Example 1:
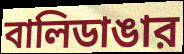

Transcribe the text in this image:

বালিডাঙার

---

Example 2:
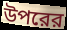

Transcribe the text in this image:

উপরের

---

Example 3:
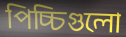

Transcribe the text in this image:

পিচ্চিগুলো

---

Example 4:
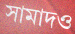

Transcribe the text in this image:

সামাদও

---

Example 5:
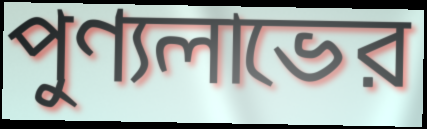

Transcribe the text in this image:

পুণ্যলাভের